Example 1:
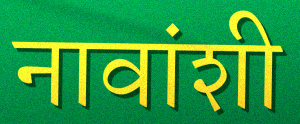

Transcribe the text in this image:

नावांशी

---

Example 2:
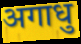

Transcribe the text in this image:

अगाधु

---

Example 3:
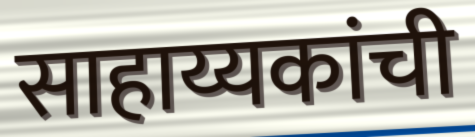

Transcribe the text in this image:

साहाय्यकांची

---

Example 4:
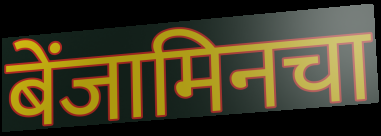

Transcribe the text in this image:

बेंजामिनचा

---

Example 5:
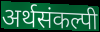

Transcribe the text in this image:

अर्थसंकल्पी